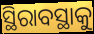
ସ୍ଥିରାବସ୍ଥାକୁ